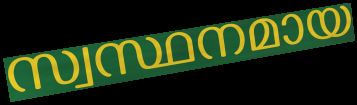
സ്വസ്ഥനമായ